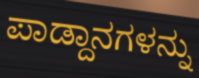
ಪಾಡ್ದಾನಗಳನ್ನು